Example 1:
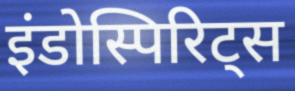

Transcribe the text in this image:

इंडोस्पिरिट्स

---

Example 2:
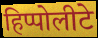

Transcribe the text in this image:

हिप्पोलीटे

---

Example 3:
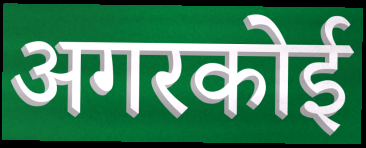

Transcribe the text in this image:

अगरकोई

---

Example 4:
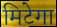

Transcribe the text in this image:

मिटेगा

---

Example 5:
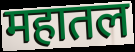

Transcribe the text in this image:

महातल